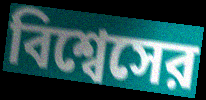
বিশ্বেসের